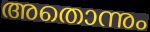
അതൊന്നും